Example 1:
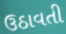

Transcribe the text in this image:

ઉઠાવતી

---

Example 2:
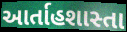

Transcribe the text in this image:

આર્તાહશાસ્તા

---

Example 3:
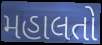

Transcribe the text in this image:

મહાલતો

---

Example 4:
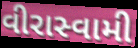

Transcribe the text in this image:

વીરાસ્વામી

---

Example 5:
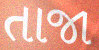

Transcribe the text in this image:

તાજા